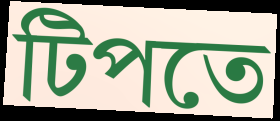
টিপতে